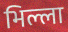
भिल्ला